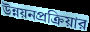
উন্নয়নপ্রক্রিয়ার